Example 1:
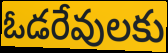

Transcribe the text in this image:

ఓడరేవులకు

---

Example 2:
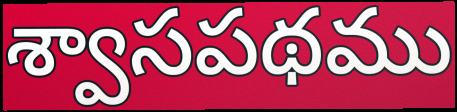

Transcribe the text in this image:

శ్వాసపథము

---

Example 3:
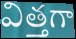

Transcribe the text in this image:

విత్తగా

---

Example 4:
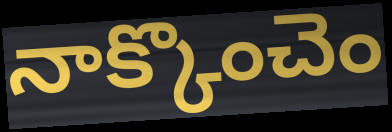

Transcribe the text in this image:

నాక్కొంచెం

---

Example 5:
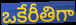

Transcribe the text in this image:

ఒకేరీతిగా